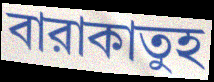
বারাকাতুহ